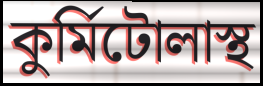
কুর্মিটোলাস্থ